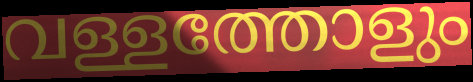
വള്ളത്തോളും